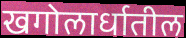
खगोलार्धातील